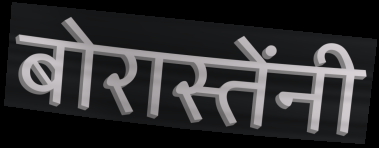
बोरास्तेंनी